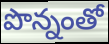
పొన్నంతో